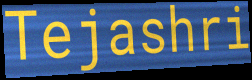
Tejashri